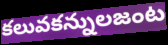
కలువకన్నులజంట